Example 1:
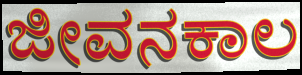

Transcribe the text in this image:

ಜೀವನಕಾಲ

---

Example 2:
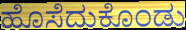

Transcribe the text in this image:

ಹೊಸೆದುಕೊಂಡು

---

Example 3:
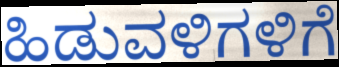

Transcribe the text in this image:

ಹಿಡುವಳಿಗಳಿಗೆ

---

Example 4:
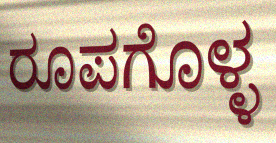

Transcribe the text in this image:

ರೂಪಗೊಳ್ಳ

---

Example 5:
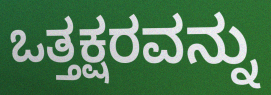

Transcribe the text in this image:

ಒತ್ತಕ್ಷರವನ್ನು